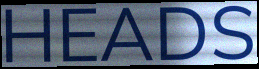
HEADS